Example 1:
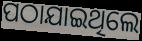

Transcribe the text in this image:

ପଠାଯାଇଥିଲେ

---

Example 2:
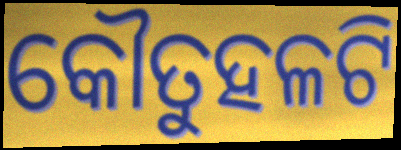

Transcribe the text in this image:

କୌତୁହଳଟି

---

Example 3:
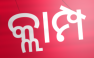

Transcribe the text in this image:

କ୍ଲାମ୍ପ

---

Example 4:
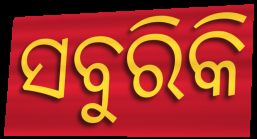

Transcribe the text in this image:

ସବୁରିକି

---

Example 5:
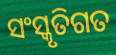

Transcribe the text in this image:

ସଂସ୍କୃତିଗତ